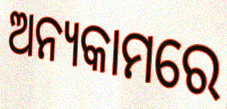
ଅନ୍ୟକାମରେ